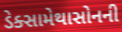
ડેક્સામેથાસોનની